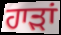
ਹਾੜਾਂ